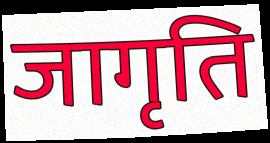
जागृति